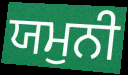
ਯਮੁਨੀ